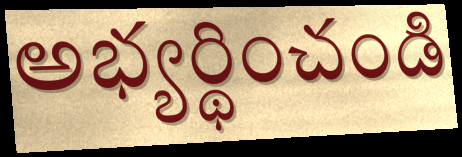
అభ్యర్థించండి